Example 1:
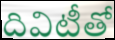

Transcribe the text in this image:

దివిటీతో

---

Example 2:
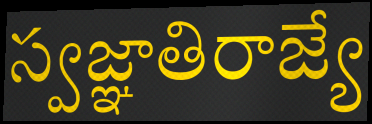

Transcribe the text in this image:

స్వజ్ఞాతిరాజ్యే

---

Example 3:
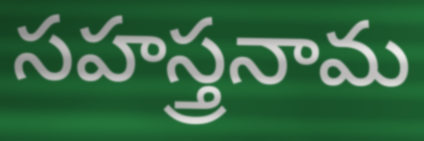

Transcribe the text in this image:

సహస్త్రనామ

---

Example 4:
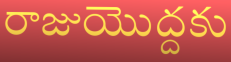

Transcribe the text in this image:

రాజుయొద్దకు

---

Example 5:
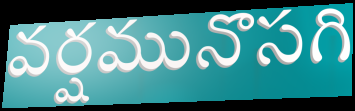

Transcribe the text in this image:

వర్షమునొసగి